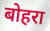
बोहरा